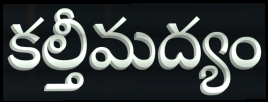
కల్తీమద్యం